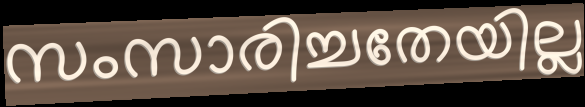
സംസാരിച്ചതേയില്ല